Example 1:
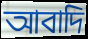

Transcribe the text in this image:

আবাদি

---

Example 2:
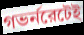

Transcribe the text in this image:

গভর্নরেটেই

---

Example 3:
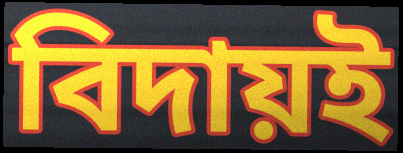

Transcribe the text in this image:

বিদায়ই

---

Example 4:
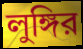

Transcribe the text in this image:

লুঙ্গির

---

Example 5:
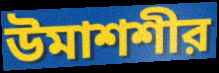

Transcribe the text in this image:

উমাশশীর